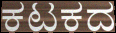
ಕಟಕದ